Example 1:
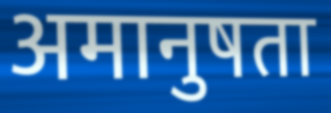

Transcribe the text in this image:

अमानुषता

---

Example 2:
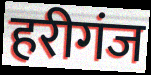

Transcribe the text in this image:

हरीगंज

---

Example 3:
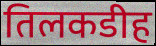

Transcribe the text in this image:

तिलकडीह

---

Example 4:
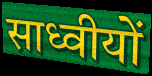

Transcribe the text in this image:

साध्वीयों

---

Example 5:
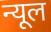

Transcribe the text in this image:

न्यूल